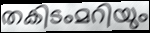
തകിടംമറിയും